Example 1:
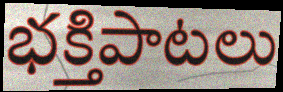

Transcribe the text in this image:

భక్తిపాటలు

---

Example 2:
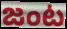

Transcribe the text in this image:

జంట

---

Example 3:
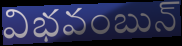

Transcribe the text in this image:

విభవంబున్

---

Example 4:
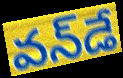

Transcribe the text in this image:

వన్‌డే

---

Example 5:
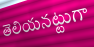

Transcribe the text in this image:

తెలియనట్టుగా